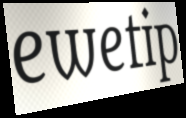
ewetip